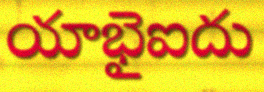
యాభైఐదు